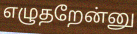
எழுதறேன்னு